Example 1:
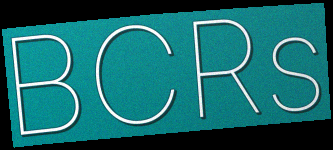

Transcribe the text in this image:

BCRs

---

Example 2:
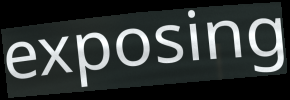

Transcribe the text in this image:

exposing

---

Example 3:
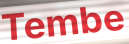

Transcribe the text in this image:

Tembe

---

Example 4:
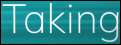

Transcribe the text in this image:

Taking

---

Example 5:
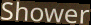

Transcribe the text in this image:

Shower